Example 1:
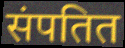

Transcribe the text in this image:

संपतित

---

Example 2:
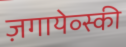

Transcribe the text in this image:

ज़गायेव्स्की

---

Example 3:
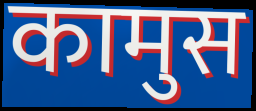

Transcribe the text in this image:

कामुस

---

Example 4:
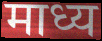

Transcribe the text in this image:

माध्‍य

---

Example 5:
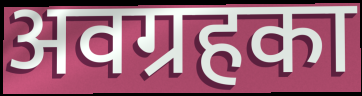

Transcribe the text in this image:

अवग्रहका